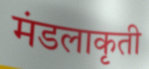
मंडलाकृती